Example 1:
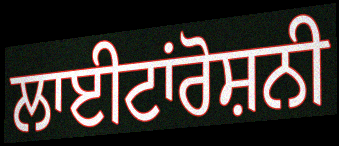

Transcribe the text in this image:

ਲਾਈਟਾਂਰੋਸ਼ਨੀ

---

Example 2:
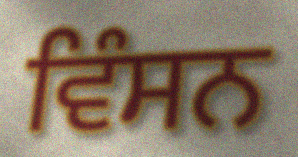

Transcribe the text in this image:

ਵਿੰਸਨ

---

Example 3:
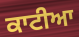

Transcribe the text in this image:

ਕਾਟੀਆ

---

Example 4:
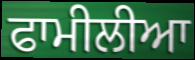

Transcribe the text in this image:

ਫਾਮੀਲੀਆ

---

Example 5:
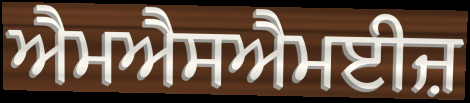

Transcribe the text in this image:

ਐਮਐਸਐਮਈਜ਼